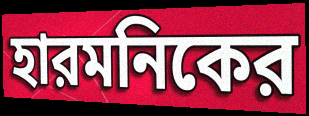
হারমনিকের